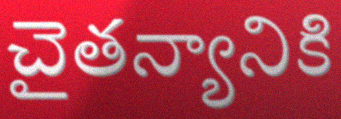
చైతన్యానికి